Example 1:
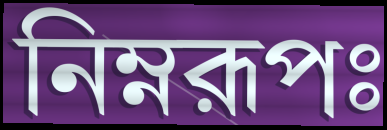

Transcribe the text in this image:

নিম্নরূপঃ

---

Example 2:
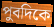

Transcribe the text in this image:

পুবদিকে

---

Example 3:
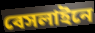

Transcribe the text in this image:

বেসলাইনে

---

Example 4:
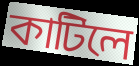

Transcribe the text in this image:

কাটিলে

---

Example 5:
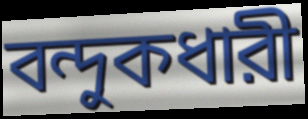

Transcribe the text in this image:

বন্দুকধারী